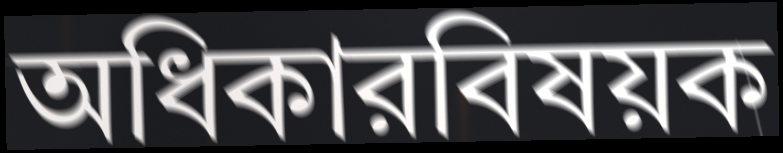
অধিকারবিষয়ক